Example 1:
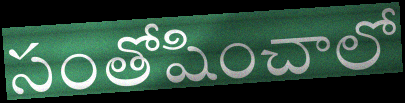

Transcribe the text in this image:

సంతోషించాలో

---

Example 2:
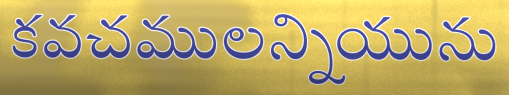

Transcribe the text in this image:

కవచములన్నియును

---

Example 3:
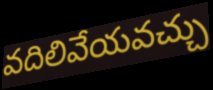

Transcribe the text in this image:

వదిలివేయవచ్చు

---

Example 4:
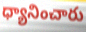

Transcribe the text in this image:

ధ్యానించారు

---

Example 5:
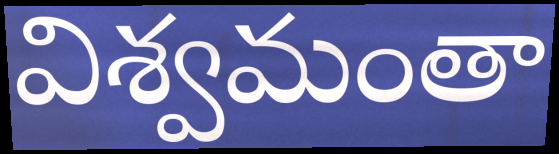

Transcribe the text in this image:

విశ్వమంతా